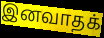
இனவாதக்